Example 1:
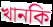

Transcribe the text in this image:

খানকি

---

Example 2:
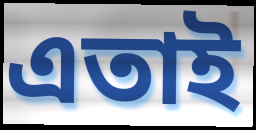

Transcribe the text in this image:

এতাই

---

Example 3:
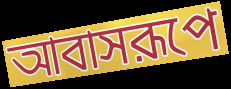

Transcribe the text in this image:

আবাসরূপে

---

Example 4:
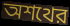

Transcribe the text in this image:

অশথের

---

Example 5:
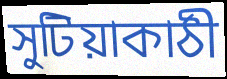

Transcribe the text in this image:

সুটিয়াকাঠী